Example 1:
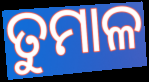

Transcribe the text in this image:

ତୁମାଳ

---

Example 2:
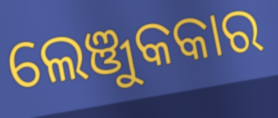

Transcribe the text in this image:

ଲେଞ୍ଜୁକକାର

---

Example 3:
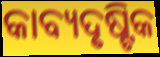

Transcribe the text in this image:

କାବ୍ୟଦୃଷ୍ଟିକ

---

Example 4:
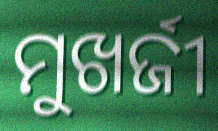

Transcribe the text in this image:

ମୁଖର୍ଜୀ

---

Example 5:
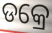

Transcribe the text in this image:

ଡକ୍ରେ